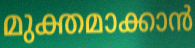
മുക്തമാക്കാൻ